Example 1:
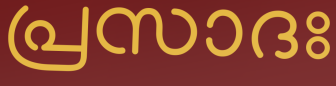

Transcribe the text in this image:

പ്രസാദഃ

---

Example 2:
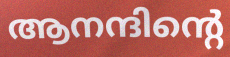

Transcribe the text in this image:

ആനന്ദിന്റെ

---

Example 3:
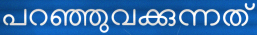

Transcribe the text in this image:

പറഞ്ഞുവക്കുന്നത്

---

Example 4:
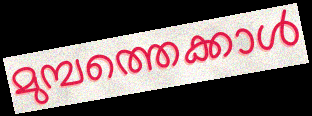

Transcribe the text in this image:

മുമ്പത്തെക്കാൾ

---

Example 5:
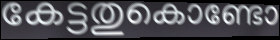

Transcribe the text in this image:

കേട്ടതുകൊണ്ടോ